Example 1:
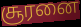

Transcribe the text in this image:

சூரனை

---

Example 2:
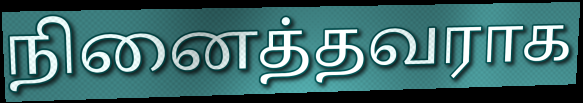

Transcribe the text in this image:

நினைத்தவராக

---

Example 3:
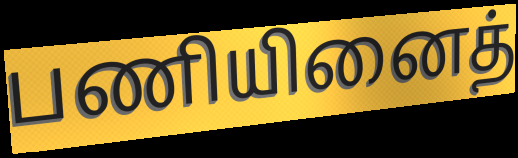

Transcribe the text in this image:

பணியினைத்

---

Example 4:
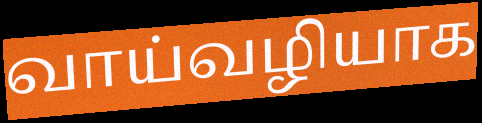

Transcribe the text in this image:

வாய்வழியாக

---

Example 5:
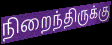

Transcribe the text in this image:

நிறைந்திருக்கு